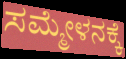
ಸಮ್ಮೇಳನಕ್ಕೆ